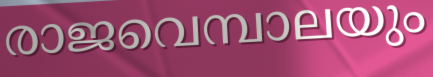
രാജവെമ്പാലയും